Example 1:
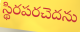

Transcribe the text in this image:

స్థిరపరచెదను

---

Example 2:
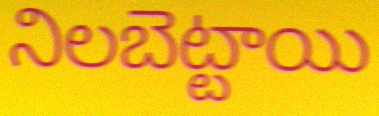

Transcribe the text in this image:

నిలబెట్టాయి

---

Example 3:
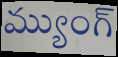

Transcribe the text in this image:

మ్యుంగ్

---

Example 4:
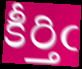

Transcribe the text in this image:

కీర్తిఁ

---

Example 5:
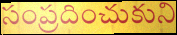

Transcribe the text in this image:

సంప్రదించుకుని